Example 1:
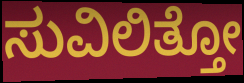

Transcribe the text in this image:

ಸುವಿಲಿತ್ತೋ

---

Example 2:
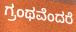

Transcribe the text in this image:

ಗ್ರಂಥವೆಂದರೆ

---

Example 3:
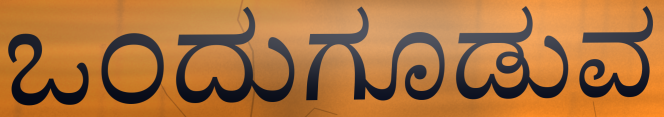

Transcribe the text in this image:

ಒಂದುಗೂಡುವ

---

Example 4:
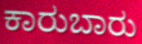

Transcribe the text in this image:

ಕಾರುಬಾರು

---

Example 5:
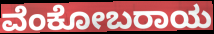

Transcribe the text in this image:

ವೆಂಕೋಬರಾಯ